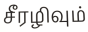
சீரழிவும்